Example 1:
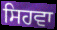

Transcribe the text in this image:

ਸਿਹਵਾ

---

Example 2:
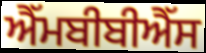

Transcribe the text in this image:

ਐੱਮਬੀਬੀਐੱਸ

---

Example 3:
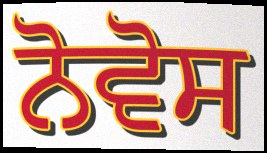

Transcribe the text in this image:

ਨੋਵੋਸ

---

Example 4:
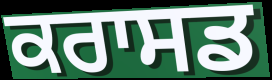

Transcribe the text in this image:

ਕਰਾਸਡ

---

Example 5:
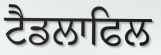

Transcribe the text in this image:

ਟੈਡਲਾਫਿਲ